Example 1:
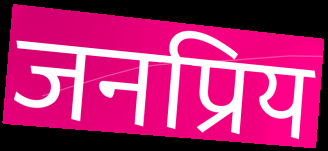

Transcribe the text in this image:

जनप्रिय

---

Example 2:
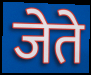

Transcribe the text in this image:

जेते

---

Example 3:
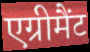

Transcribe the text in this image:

एग्रीमैंट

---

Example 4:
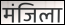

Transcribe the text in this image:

मंजिला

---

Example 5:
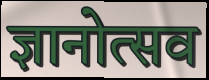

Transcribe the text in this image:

ज्ञानोत्सव